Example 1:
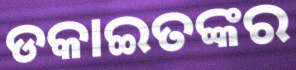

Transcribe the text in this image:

ଡକାଇତଙ୍କର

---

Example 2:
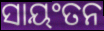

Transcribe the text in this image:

ସାୟଂତନ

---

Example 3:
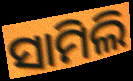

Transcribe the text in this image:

ସାମିଲି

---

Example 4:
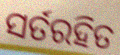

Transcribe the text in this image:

ସର୍ତରହିତ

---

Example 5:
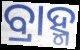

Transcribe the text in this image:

ବ୍ରାହ୍ମ